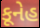
કૂનેહ